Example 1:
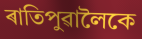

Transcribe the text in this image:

ৰাতিপুৱালৈকে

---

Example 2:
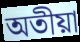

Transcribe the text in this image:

অতীয়া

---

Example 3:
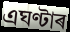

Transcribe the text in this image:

এঘণ্টাৰ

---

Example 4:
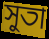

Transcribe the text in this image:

সুতা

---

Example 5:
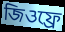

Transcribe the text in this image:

জিওফ্ৰে